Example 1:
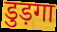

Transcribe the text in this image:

डुड़गा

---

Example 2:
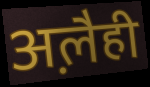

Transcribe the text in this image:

अ़लैही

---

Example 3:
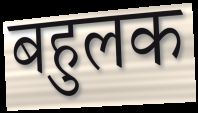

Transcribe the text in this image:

बहुलक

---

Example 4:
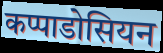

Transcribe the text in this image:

कप्पाडोसियन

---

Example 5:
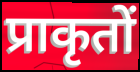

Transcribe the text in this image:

प्राकृतों